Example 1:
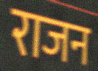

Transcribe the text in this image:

राजन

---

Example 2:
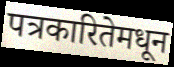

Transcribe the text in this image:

पत्रकारितेमधून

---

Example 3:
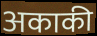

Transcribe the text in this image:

अकाकी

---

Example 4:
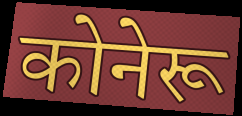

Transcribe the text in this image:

कोनेरू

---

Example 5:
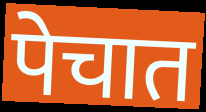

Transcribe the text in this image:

पेचात